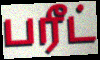
பரீட்